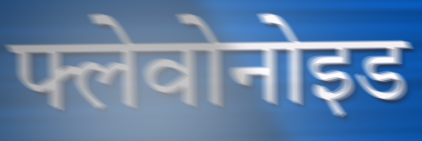
फ्लेवोनोइड